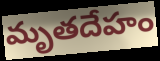
మృతదేహం